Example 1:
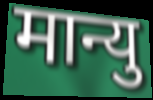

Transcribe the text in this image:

मान्यु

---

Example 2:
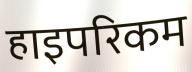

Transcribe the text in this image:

हाइपरिकम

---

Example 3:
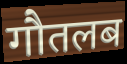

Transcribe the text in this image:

गौतलब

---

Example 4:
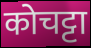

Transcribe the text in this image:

कोचट्टा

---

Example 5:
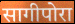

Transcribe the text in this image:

सागीपोरा